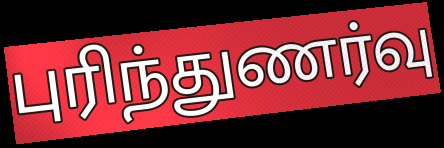
புரிந்துணர்வு